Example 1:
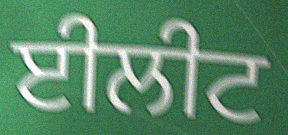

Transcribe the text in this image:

ਈਲੀਟ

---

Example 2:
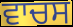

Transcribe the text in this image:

ਵਾਚਸ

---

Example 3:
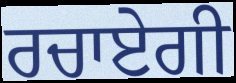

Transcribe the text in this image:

ਰਚਾਏਗੀ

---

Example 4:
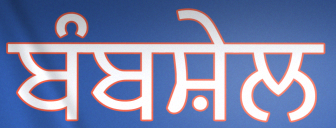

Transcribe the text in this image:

ਬੰਬਸ਼ੇਲ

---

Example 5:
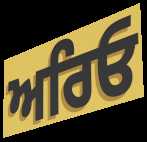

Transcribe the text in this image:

ਅਰਿਓ